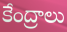
కేంద్రాలు